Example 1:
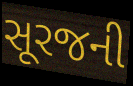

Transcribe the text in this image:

સૂરજની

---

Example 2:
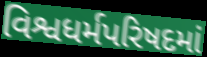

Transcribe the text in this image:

વિશ્વધર્મપરિષદમાં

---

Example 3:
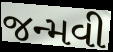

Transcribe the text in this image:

જન્મવી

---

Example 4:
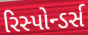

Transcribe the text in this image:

રિસ્પોન્ડર્સ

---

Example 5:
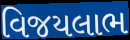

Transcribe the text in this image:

વિજયલાભ